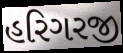
હરિગરજી